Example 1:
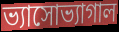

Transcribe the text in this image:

ভ্যাসোভ্যাগাল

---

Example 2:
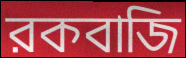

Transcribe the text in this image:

রকবাজি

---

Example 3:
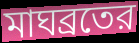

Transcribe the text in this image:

মাঘব্রতের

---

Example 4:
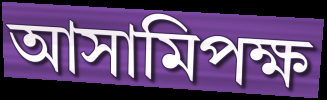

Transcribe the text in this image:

আসামিপক্ষ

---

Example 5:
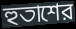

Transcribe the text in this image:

হুতাশের